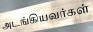
அடங்கியவர்கள்